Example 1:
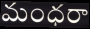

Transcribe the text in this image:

మంధరా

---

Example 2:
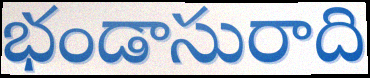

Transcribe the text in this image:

భండాసురాది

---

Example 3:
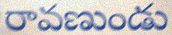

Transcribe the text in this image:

రావణుండు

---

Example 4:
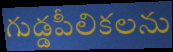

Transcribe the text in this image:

గుడ్డపీలికలను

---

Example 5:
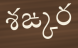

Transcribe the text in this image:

శఙ్కర